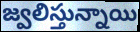
జ్వలిస్తున్నాయి